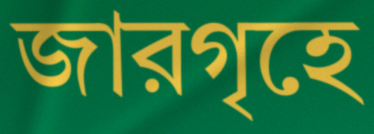
জারগৃহে